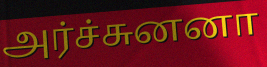
அர்ச்சுனனா